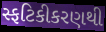
સ્ફટિકીકરણથી